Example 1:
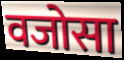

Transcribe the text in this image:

वजोसा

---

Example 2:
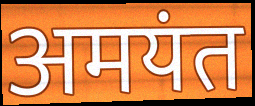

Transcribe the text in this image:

अमयंत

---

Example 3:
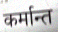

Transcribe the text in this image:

कर्मान्त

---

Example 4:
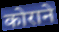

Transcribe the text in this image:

कोराने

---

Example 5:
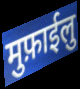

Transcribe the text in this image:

मुफ़ाईलु